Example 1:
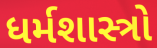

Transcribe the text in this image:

ધર્મશાસ્ત્રો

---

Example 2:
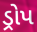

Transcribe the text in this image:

ડ્રોપ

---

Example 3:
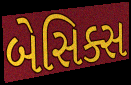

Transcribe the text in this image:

બેસિક્સ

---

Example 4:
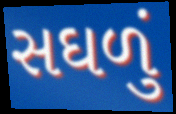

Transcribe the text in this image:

સઘળું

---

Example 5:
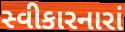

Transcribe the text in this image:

સ્વીકારનારાં